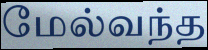
மேல்வந்த